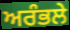
ਅਰੰਭਲੇ